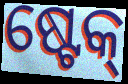
ଷ୍ଟେକ୍